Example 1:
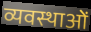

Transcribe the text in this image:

व्यवस्थाओें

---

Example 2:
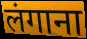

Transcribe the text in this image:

लंगाना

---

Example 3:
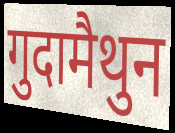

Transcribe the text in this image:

गुदामैथुन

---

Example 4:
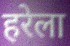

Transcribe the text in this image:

हरेला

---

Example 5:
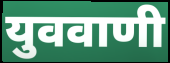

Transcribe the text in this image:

युववाणी